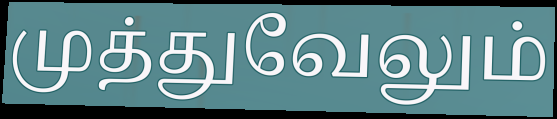
முத்துவேலும்